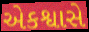
એકશ્વાસે